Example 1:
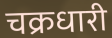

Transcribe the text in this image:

चक्रधारी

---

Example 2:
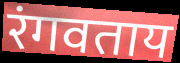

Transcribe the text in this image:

रंगवताय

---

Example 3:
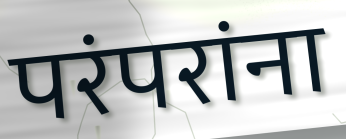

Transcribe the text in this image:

परंपरांना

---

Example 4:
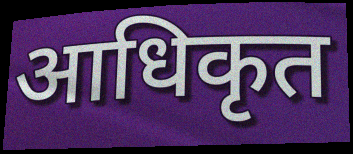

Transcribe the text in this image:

आधिकृत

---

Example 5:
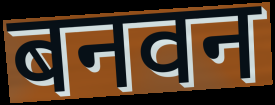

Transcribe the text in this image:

बनवन